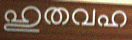
ഹുതവഹ